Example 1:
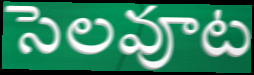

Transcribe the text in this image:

సెలవూట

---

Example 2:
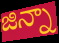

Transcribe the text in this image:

జిన్నా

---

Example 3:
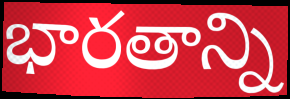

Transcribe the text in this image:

భారతాన్ని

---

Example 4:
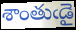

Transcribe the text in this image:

శాంతుఁడై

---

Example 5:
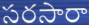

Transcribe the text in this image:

సరసారా